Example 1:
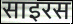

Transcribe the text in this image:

साइरस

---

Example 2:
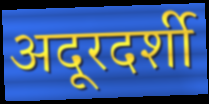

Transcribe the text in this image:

अदूरदर्शी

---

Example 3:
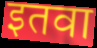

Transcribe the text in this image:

इतवा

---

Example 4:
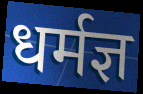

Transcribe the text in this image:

धर्मज्ञ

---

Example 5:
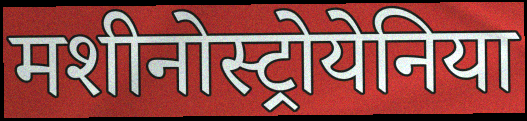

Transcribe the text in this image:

मशीनोस्ट्रोयेनिया